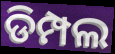
ଡିମ୍ପଲ